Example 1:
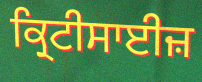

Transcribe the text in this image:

ਕ੍ਰਿਟੀਸਾਈਜ਼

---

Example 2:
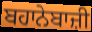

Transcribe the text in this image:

ਬਹਾਨੇਬਾਜ਼ੀ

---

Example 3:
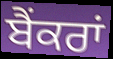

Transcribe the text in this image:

ਬੈਂਕਰਾਂ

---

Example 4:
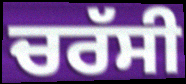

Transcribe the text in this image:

ਚਰੱਸੀ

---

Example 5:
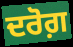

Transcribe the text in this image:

ਦਰੋਗ਼